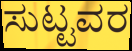
ಸುಟ್ಟವರ